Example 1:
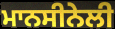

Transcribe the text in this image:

ਮਾਨਸੀਨੇਲੀ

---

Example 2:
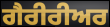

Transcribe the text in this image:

ਗੈਰੀਰੀਅਰ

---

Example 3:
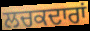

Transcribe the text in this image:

ਲਚਕਦਾਰਾਂ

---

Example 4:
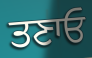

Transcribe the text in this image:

ਤਣਾਓ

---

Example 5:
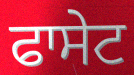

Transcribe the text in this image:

ਫਾਸੇਟ